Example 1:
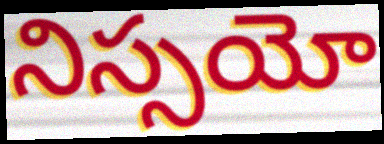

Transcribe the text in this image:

నిస్సయో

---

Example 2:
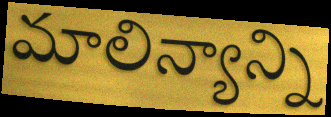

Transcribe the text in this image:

మాలిన్యాన్ని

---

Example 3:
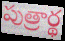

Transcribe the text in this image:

పుత్రార్థ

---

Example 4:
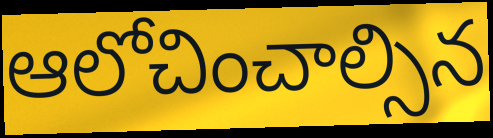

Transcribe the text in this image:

ఆలోచించాల్సిన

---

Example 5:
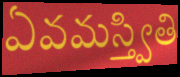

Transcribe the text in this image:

ఏవమస్త్వితి